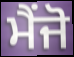
ਮੈਂਜੋ